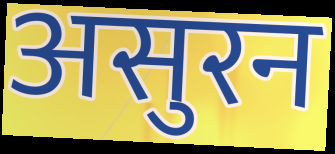
असुरन